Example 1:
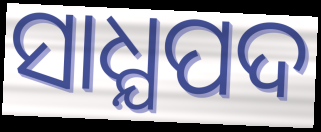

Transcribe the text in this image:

ସାଧ୍ଯପଦ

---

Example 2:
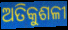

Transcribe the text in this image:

ଅତିକୁଶଳୀ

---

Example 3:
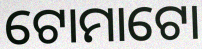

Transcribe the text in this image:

ଟୋମାଟୋ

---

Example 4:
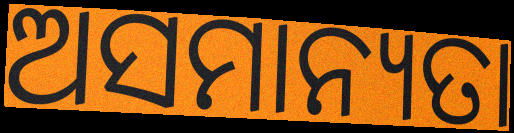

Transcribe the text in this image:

ଅସମାନ୍ୟତା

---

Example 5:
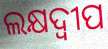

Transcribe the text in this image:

ଲକ୍ଷଦ୍ୱୀପ